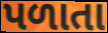
પળાતા